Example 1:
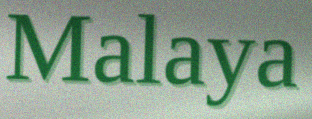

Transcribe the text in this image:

Malaya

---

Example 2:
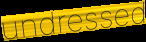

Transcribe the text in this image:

undressed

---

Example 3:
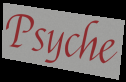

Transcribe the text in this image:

Psyche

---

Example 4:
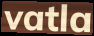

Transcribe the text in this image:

vatla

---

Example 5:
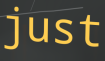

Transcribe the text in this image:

just